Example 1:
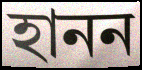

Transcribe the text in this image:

হানন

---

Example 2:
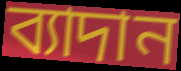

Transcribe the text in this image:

ব্যাদান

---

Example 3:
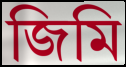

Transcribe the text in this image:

জিমি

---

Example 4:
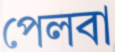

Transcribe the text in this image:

পেলবা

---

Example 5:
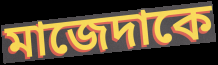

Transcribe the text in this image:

মাজেদাকে